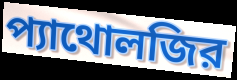
প্যাথোলজির